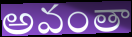
అవంతా